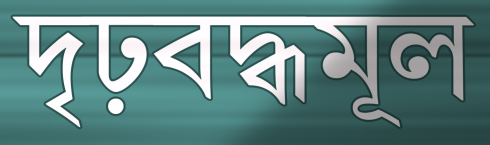
দৃঢ়বদ্ধমূল